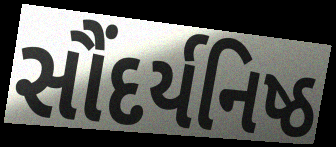
સૌંદર્યનિષ્ઠ